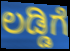
ಲಡ್ಡಿಗೆ